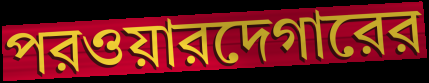
পরওয়ারদেগারের